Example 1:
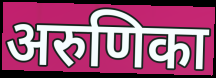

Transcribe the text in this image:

अरुणिका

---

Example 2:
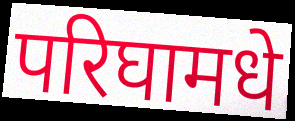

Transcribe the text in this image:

परिघामधे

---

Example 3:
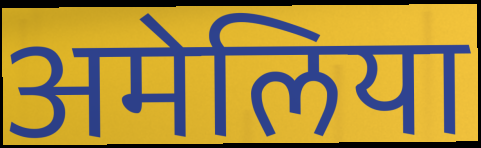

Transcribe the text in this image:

अमेलिया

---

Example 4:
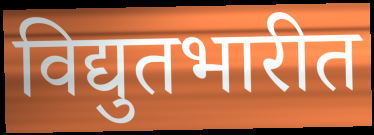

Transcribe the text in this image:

विद्युतभारीत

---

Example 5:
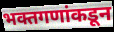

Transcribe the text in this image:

भक्तगणांकडून